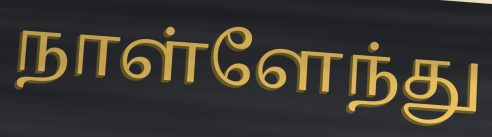
நாள்ளேந்து